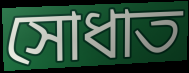
সোধাত